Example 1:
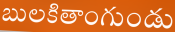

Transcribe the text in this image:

బులకితాంగుండు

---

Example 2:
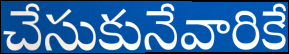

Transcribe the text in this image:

చేసుకునేవారికే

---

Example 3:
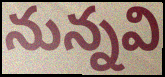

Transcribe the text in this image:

నున్నవి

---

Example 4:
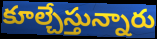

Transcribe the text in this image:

కూల్చేస్తున్నారు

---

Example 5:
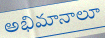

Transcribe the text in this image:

అభిమానాలూ